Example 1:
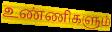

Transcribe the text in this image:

உண்ணிகளும்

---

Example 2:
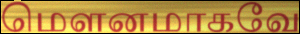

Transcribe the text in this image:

மெளனமாகவே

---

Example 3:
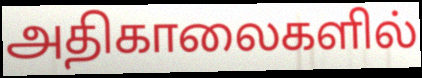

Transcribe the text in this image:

அதிகாலைகளில்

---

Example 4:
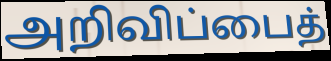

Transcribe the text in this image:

அறிவிப்பைத்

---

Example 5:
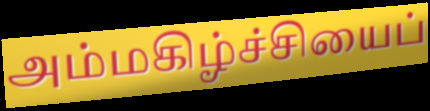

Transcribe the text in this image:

அம்மகிழ்ச்சியைப்